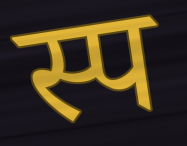
स्प